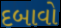
દબાવો